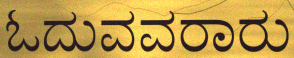
ಓದುವವರಾರು